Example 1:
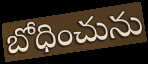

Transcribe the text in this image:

బోధించును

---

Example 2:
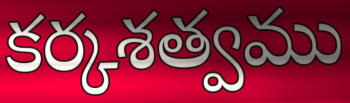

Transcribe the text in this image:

కర్కశత్వము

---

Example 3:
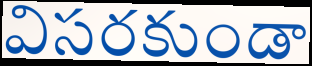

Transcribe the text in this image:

విసరకుండా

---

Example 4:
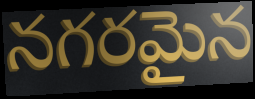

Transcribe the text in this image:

నగరమైన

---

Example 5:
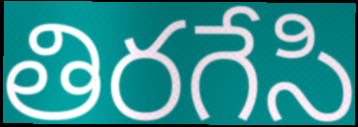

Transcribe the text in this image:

తిరగేసి